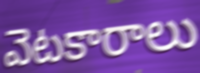
వెటకారాలు